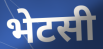
भेटसी